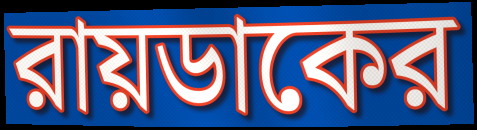
রায়ডাকের